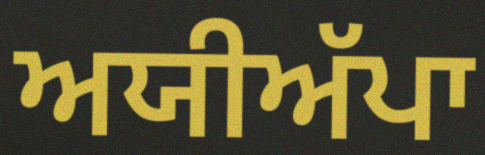
ਅਯੀਅੱਪਾ